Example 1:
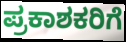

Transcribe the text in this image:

ಪ್ರಕಾಶಕರಿಗೆ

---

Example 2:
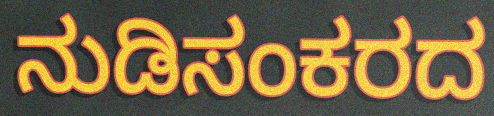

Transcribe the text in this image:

ನುಡಿಸಂಕರದ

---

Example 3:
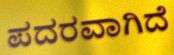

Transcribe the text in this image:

ಪದರವಾಗಿದೆ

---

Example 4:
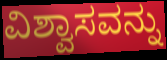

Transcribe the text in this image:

ವಿಶ್ವಾಸವನ್ನು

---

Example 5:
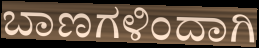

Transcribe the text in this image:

ಬಾಣಗಳಿಂದಾಗಿ